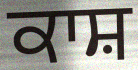
ਕਾਸ਼